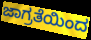
ಜಾಗ್ರತೆಯಿಂದ